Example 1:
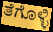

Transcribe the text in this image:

ತೆಗೊಳ್ಳಿ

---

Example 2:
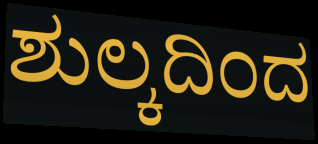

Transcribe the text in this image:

ಶುಲ್ಕದಿಂದ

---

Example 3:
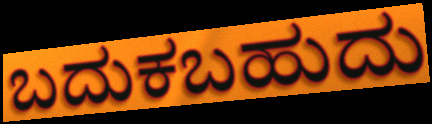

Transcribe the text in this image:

ಬದುಕಬಹುದು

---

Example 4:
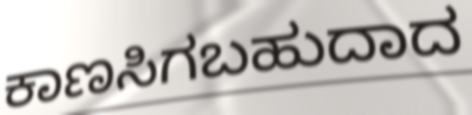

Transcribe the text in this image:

ಕಾಣಸಿಗಬಹುದಾದ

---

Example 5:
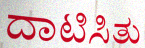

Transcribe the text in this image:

ದಾಟಿಸಿತು